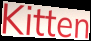
Kitten